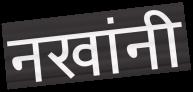
नखांनी